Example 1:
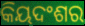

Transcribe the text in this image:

କିୟଦଂଶର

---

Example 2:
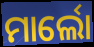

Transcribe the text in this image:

ମାର୍ଲୋ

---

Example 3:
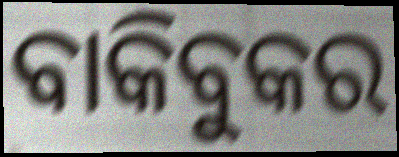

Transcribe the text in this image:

ବାକିବୁକର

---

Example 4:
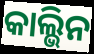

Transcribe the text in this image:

କାଲ୍ଭିନ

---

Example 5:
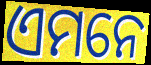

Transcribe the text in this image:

ଏମନେ